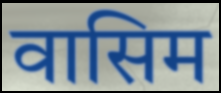
वासिम